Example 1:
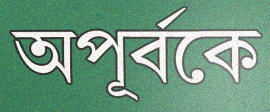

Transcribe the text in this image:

অপূর্বকে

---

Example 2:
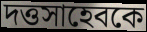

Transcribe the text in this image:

দত্তসাহেবকে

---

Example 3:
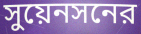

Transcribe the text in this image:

সুয়েনসনের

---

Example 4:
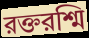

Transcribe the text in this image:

রক্তরশ্মি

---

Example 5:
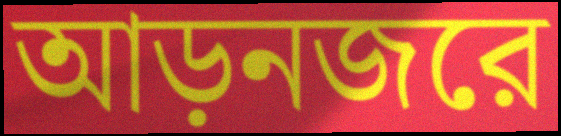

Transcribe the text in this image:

আড়নজরে